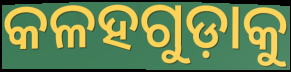
କଳହଗୁଡ଼ାକୁ